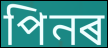
পিনৰ